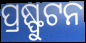
ପ୍ରଷ୍ଫୁଟନ